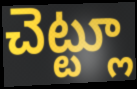
చెట్ట్లూ